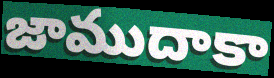
జాముదాకా